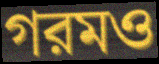
গরমও